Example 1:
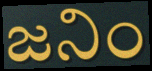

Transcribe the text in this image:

జనిం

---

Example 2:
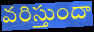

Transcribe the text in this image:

వరిస్తుందా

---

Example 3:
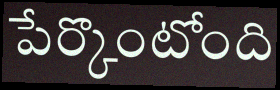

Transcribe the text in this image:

పేర్కొంటోంది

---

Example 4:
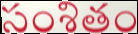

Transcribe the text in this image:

సంశితం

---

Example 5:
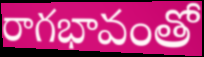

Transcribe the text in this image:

రాగభావంతో